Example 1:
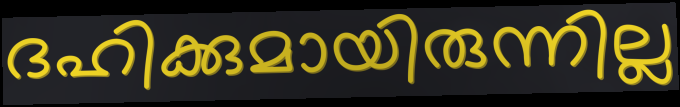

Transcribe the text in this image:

ദഹിക്കുമായിരുന്നില്ല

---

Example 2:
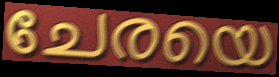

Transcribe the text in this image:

ചേരയെ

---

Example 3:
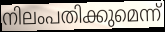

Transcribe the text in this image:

നിലംപതിക്കുമെന്ന്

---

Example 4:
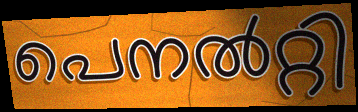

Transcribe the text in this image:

പെനൽറ്റി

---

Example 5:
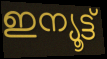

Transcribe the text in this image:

ഇന്യൂട്ട്